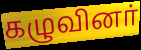
கழுவினர்